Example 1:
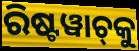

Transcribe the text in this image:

ରିଷ୍ଟୱାଚ୍‌କୁ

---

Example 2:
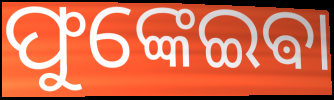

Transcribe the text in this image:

ଫୁଙ୍କେଇଵା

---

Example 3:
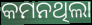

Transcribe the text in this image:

କମନଥିଲା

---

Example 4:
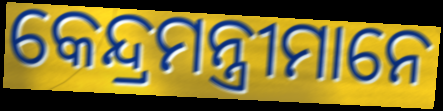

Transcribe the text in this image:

କେନ୍ଦ୍ରମନ୍ତ୍ରୀମାନେ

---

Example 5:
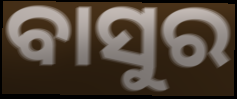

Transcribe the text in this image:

ବାସୁର